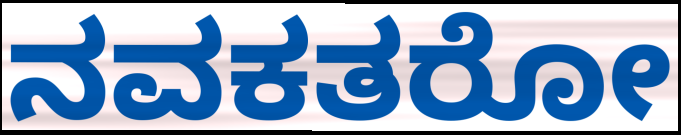
ನವಕತರೋ